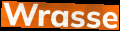
Wrasse